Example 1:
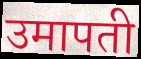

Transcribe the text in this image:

उमापती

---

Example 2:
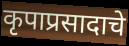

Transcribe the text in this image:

कृपाप्रसादाचे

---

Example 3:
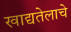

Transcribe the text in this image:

खाद्यतेलाचे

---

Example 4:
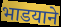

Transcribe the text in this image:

भाडयाने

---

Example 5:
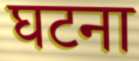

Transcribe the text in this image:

घटना